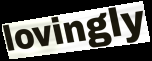
lovingly